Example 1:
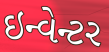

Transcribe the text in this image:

ઇન્વેન્ટર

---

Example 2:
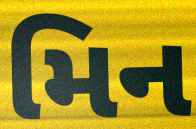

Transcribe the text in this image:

મિન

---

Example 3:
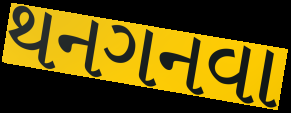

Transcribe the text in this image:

થનગનવા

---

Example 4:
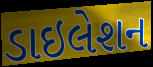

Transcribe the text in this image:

ડાઇલેશન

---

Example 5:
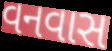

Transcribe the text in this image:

વનવાસ